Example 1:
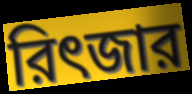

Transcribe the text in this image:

রিৎজার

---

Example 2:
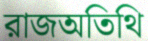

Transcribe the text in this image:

রাজঅতিথি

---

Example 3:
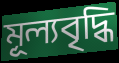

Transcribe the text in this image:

মূল্যবৃদ্ধি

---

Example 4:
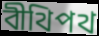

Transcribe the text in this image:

বীথিপথ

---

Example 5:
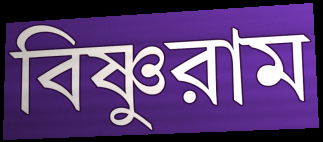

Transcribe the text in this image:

বিষ্ণুরাম